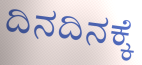
ದಿನದಿನಕ್ಕೆ